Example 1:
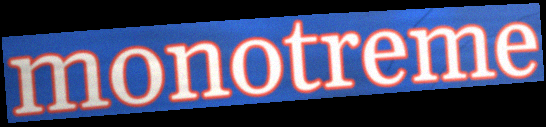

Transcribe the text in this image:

monotreme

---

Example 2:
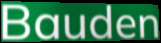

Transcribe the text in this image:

Bauden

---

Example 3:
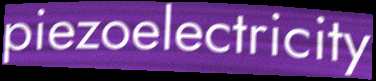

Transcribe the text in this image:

piezoelectricity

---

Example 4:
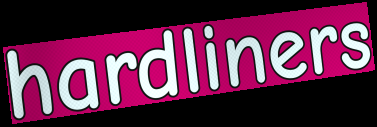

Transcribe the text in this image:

hardliners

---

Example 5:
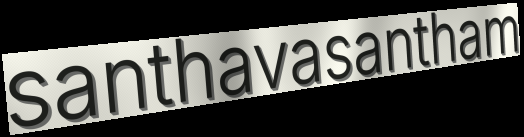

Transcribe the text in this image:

santhavasantham